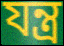
যন্ত্ৰ